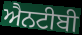
ਐਨਟੀਬੀ